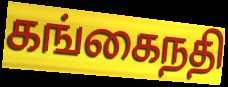
கங்கைநதி